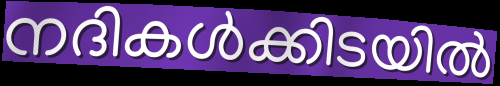
നദികൾക്കിടയിൽ